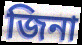
জিনা